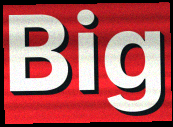
Big